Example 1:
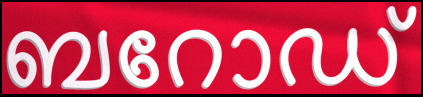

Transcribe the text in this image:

ബറോഡ്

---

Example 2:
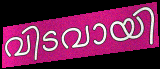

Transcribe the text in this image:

വിടവായി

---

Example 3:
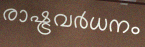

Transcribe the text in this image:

രാഷ്ട്രവർധനം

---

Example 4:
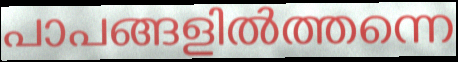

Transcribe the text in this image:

പാപങ്ങളിൽത്തന്നെ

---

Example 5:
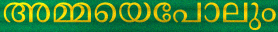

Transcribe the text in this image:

അമ്മയെപോലും